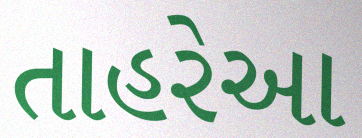
તાહરેઆ